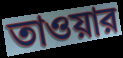
তাওয়ার